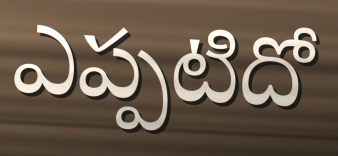
ఎప్పటిదో